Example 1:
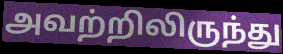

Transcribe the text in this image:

அவற்றிலிருந்து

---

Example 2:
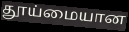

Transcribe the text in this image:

தூய்மையான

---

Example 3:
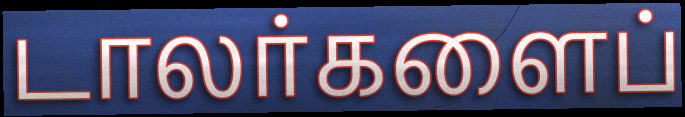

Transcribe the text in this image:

டாலர்களைப்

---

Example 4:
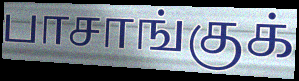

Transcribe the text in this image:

பாசாங்குக்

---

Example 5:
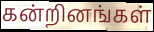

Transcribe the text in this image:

கன்றினங்கள்